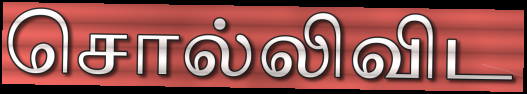
சொல்லிவிட